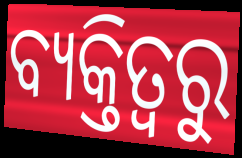
ବ୍ୟକ୍ତିତ୍ୱରୁ